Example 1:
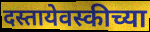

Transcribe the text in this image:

दस्तायेवस्कीच्या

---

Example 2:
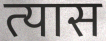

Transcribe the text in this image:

त्‍यास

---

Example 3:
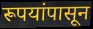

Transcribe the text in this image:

रूपयांपासून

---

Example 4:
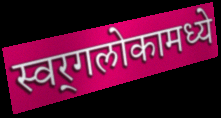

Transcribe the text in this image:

स्वर्गलोकामध्ये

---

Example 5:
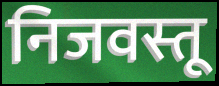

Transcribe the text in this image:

निजवस्तू